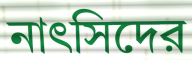
নাৎসিদের